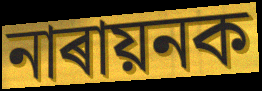
নাৰায়নক